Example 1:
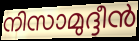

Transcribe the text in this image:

നിസാമുദ്ദീൻ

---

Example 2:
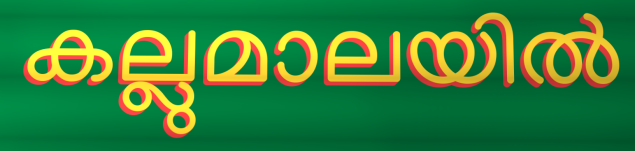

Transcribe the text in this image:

കല്ലുമാലയിൽ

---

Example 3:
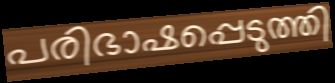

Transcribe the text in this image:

പരിഭാഷപ്പെടുത്തി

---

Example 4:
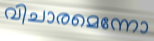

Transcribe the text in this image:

വിചാരമെന്നോ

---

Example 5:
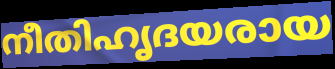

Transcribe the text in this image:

നീതിഹൃദയരായ